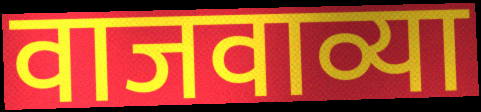
वाजवाव्या